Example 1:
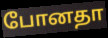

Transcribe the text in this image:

போனதா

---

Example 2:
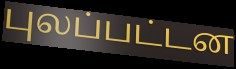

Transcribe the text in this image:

புலப்பட்டன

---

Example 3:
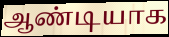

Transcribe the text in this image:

ஆண்டியாக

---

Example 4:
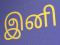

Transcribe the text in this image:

இனி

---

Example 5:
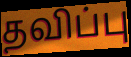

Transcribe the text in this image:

தவிப்பு